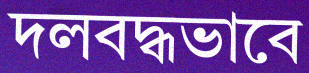
দলবদ্ধভাবে